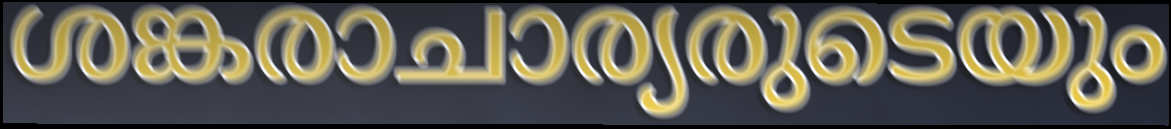
ശങ്കരാചാര്യരുടെയും